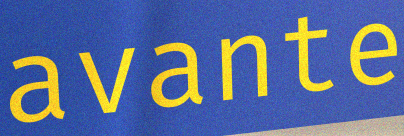
avante